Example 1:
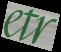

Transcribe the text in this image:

etr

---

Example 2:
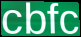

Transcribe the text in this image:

cbfc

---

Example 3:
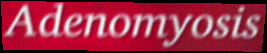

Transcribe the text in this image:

Adenomyosis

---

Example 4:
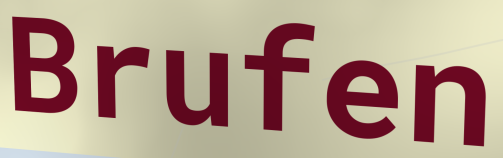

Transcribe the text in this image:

Brufen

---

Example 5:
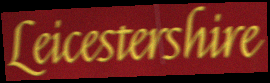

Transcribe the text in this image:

Leicestershire